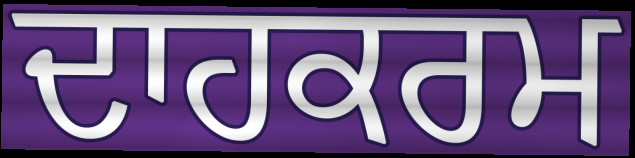
ਦਾਹਕਰਮ